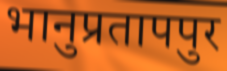
भानुप्रतापपुर